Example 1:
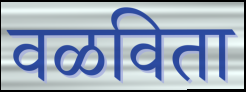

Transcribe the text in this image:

वळविता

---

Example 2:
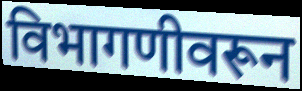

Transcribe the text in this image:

विभागणीवरून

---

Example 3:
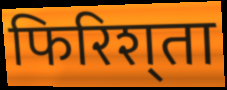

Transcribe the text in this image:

फिरिश्ता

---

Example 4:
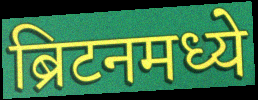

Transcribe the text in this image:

ब्रिटनमध्ये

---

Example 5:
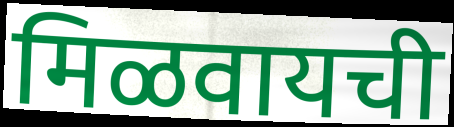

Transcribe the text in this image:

मिळवायची